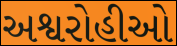
અશ્વરોહીઓ